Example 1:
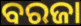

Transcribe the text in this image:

ବରଜା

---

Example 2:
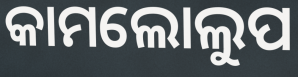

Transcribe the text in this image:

କାମଲୋଲୁପ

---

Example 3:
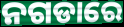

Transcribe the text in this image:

ନଗଡାରେ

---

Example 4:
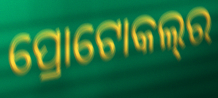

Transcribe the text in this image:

ପ୍ରୋଟୋକଲ୍‌ର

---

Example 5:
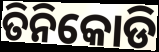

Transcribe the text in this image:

ତିନିକୋଡି